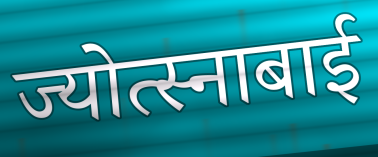
ज्योत्स्नाबाई